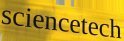
sciencetech